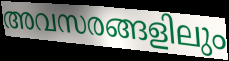
അവസരങ്ങളിലും